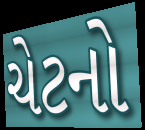
ચેટનો